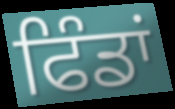
ਫਿੰਡਾਂ